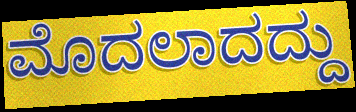
ಮೊದಲಾದದ್ದು